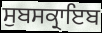
ਸੁਬਸਕ੍ਰਾਇਬ